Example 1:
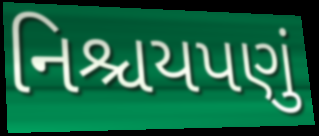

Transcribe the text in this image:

નિશ્ચયપણું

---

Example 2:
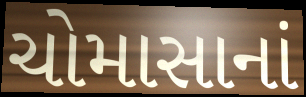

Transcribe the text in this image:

ચોમાસાનાં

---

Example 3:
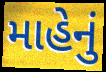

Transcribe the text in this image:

માહેનું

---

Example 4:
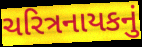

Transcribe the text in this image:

ચરિત્રનાયકનું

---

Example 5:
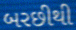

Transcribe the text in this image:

બરછીથી